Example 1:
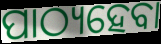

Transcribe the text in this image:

ପାଠ୍ୟହେବା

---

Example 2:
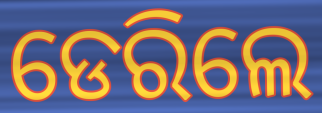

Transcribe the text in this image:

ଡେରିଲେ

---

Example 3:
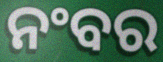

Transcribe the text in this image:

ନଂବର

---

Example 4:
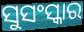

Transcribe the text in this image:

ସୁସଂସ୍କାର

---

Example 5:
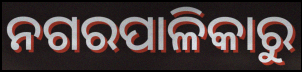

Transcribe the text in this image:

ନଗରପାଳିକାରୁ